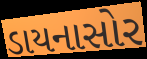
ડાયનાસોર